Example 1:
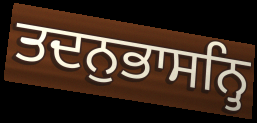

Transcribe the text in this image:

ਤਦਨੁਭਾਸਨ੍ਤਿ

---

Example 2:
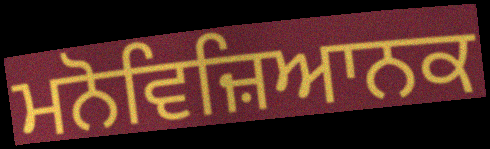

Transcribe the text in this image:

ਮਨੋਵਿਜ਼ਿਆਨਕ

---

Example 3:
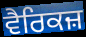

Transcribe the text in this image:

ਵੈਰਿਕਜ਼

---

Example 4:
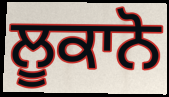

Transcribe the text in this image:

ਲੂਕਾਨੋ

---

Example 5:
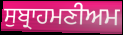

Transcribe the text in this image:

ਸੁਬ੍ਰਾਹਮਣੀਅਮ